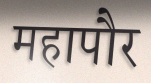
महापौर